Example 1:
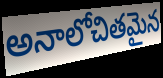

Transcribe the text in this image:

అనాలోచితమైన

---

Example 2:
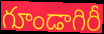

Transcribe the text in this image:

గూండాగిరీ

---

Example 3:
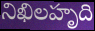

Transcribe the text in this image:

నిఖిలహృది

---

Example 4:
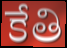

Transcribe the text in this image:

కేతి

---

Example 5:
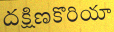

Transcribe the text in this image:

దక్షిణకొరియా